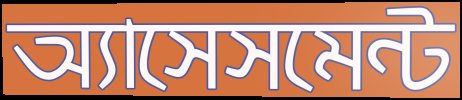
অ্যাসেসমেন্ট